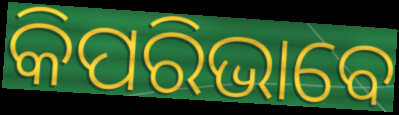
କିପରିଭାବେ